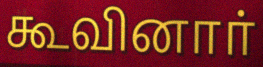
கூவினார்